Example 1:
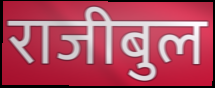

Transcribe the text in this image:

राजीबुल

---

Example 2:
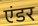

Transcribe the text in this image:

एंडर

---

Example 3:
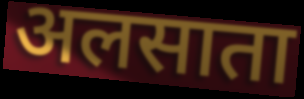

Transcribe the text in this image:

अलसाता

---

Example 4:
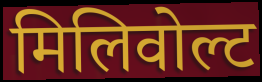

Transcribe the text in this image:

मिलिवोल्ट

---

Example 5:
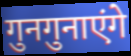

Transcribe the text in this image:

गुनगुनाएंगे